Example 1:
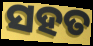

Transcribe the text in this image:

ସହତ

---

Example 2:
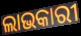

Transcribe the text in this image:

ଲାଭକାରୀ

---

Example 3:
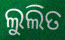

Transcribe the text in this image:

ଲୁଲିତ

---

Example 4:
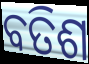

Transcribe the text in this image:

ବତିଶ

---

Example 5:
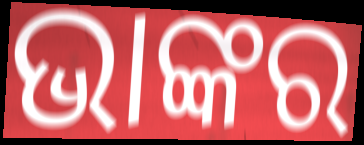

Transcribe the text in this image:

ଭାଙ୍କର